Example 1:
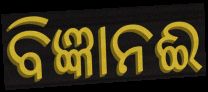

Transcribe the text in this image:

ବିଜ୍ଞାନଈ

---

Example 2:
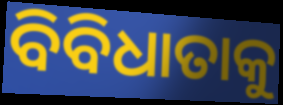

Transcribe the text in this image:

ବିବିଧାତାକୁ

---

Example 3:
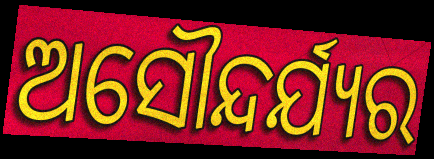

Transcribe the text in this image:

ଅସୌନ୍ଦର୍ଯ୍ୟର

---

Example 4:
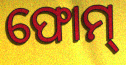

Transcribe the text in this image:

ଫୋମ୍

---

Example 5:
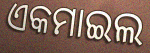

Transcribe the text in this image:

ଏକମାଇଲ